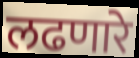
लढणारे